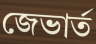
জেভার্ত